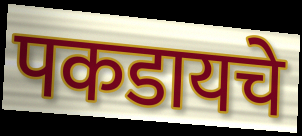
पकडायचे